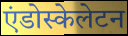
एंडोस्केलेटन